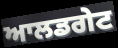
ਆਲਡਗੇਟ